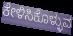
ಕೇಳಿಸಿಕೊಳ್ಳುವ